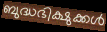
ബുദ്ധഭിക്ഷുക്കൾ